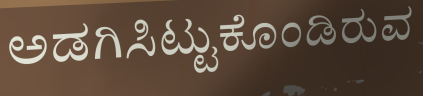
ಅಡಗಿಸಿಟ್ಟುಕೊಂಡಿರುವ